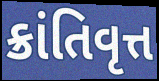
ક્રાંતિવૃત્ત